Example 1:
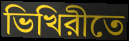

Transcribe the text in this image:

ভিখিরীতে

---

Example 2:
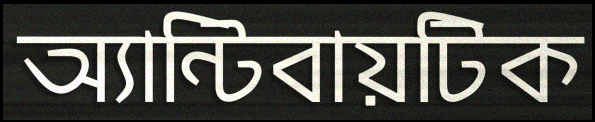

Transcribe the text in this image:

অ্যান্টিবায়টিক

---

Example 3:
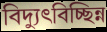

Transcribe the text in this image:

বিদ্যুৎবিচ্ছিন্ন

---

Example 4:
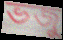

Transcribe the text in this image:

ভজু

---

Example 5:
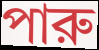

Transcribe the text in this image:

পারু